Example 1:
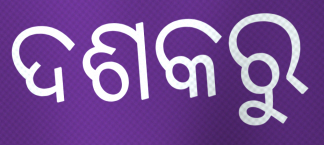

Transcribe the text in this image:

ଦଶକରୁ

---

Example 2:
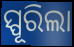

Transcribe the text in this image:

ସ୍ପୂରିଲା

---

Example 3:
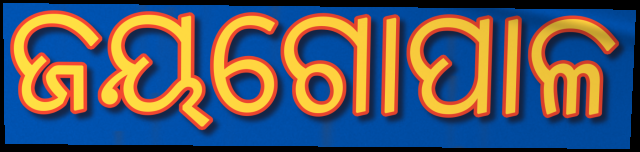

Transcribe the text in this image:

ଜୟଗୋପାଳ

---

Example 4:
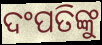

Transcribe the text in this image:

ଦଂପତିଙ୍କୁ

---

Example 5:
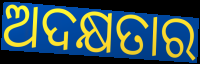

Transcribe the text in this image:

ଅଦକ୍ଷତାର